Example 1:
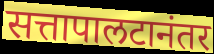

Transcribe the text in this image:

सत्तापालटानंतर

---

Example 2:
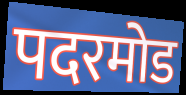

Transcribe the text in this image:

पदरमोड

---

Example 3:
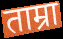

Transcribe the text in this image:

ताम्रा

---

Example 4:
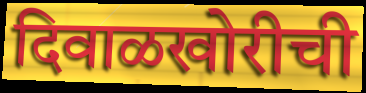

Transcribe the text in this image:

दिवाळखोरीची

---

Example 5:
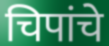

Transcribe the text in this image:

चिपांचे